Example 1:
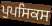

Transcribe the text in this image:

ਪੁਪਸਿਕਸ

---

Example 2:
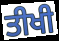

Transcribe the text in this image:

ਤੀਖੀ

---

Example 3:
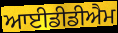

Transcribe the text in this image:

ਆਈਡੀਡੀਐਮ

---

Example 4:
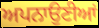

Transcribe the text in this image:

ਅਪਨਾਉਣੀਆਂ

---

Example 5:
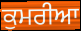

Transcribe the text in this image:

ਕੁਮਰੀਆ